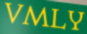
VMLY